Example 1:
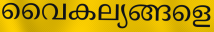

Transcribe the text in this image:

വൈകല്യങ്ങളെ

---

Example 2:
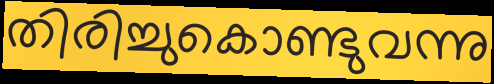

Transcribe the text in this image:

തിരിച്ചുകൊണ്ടുവന്നു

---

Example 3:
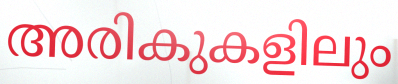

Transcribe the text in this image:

അരികുകളിലും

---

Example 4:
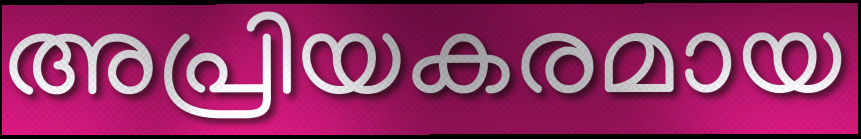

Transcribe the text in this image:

അപ്രിയകരമായ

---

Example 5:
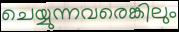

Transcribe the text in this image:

ചെയ്യുന്നവരെങ്കിലും